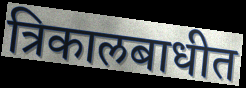
त्रिकालबाधीत